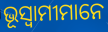
ଭୂସ୍ୱାମୀମାନେ